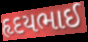
હૃદયભાઈ